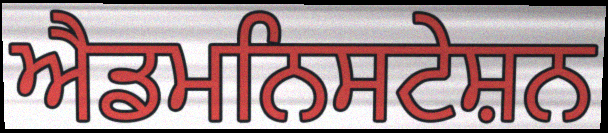
ਐਡਮਨਿਸਟੇਸ਼ਨ